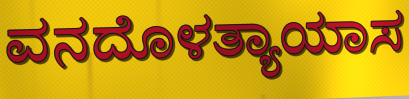
ವನದೊಳತ್ಯಾಯಾಸ